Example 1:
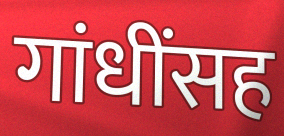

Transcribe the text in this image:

गांधींसह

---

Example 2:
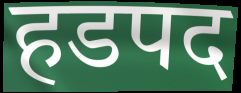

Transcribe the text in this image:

हडपद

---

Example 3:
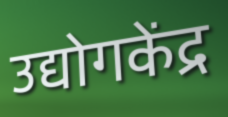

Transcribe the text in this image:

उद्योगकेंद्र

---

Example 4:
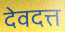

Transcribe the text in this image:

देवदत्त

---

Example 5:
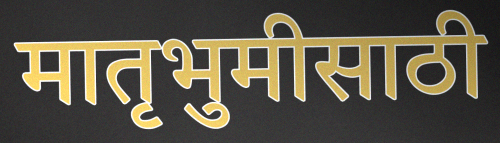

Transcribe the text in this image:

मातृभुमीसाठी